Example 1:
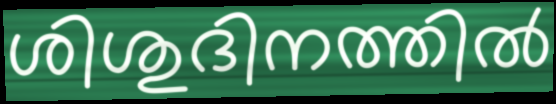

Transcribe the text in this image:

ശിശുദിനത്തിൽ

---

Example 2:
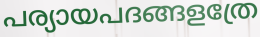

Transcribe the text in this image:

പര്യായപദങ്ങളത്രേ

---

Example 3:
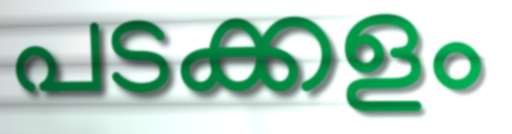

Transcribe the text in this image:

പടക്കളം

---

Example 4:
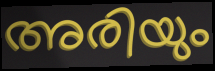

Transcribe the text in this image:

അരിയും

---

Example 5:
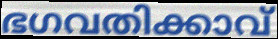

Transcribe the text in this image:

ഭഗവതിക്കാവ്